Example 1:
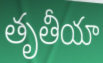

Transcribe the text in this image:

తృతీయా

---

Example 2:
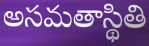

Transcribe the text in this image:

అసమతాస్థితి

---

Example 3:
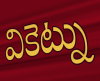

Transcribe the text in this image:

వికెట్ను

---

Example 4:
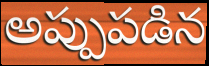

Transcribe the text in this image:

అప్పుపడిన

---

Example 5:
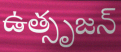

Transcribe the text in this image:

ఉత్సృజన్